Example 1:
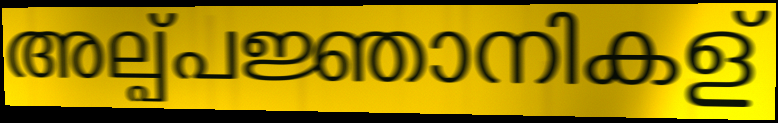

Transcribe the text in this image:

അല്പ്പജ്ഞാനികള്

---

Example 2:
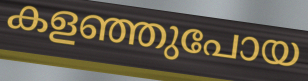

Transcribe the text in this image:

കളഞ്ഞുപോയ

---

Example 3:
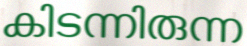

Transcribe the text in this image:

കിടന്നിരുന്ന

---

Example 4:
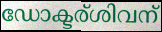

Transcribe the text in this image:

ഡോക്ടര്ശിവന്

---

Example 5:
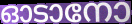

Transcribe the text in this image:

ഓടാനോ